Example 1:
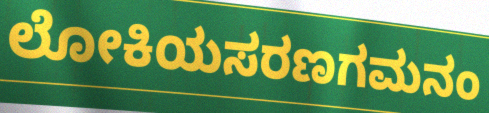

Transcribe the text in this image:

ಲೋಕಿಯಸರಣಗಮನಂ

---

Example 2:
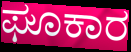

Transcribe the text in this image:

ಘೂಕಾರ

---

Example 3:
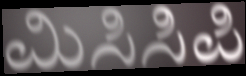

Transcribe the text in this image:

ಮಿಸಿಸಿಪಿ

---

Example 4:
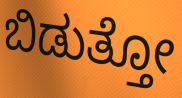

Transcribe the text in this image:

ಬಿಡುತ್ತೋ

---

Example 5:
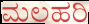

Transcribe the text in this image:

ಮಲಹರಿ